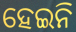
ହେଇନି